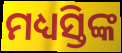
ମଧ୍ୟସ୍ତିଙ୍କ